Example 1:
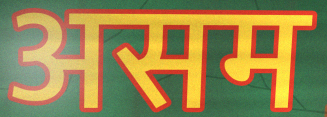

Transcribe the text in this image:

असम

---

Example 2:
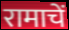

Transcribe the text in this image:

रामाचें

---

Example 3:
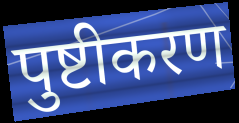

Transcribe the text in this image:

पुष्टीकरण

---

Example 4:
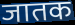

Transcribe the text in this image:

जातक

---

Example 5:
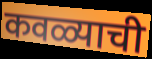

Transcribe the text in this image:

कवळ्याची